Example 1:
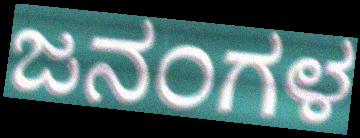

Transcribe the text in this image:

ಜನಂಗಳ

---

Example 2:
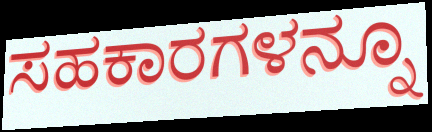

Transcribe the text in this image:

ಸಹಕಾರಗಳನ್ನೂ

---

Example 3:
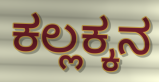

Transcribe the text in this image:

ಕಲ್ಲಕ್ಕನ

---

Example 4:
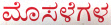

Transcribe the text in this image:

ಮೊಸಳೆಗಳ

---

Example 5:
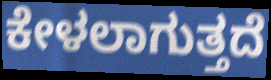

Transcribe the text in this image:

ಕೇಳಲಾಗುತ್ತದೆ